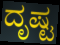
ದೃಷ್ಟ